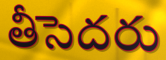
తీసెదరు